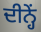
ਦੀਨ੍ਹੇਂ